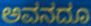
ಅವನದೂ